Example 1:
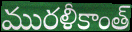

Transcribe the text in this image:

మురళీకాంత్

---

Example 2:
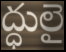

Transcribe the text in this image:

ద్ధులై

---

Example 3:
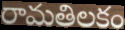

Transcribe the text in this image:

రామతిలకం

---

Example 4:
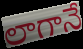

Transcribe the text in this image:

లాగానే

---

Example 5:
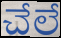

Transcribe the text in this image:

చేలే